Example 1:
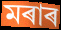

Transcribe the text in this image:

মৰাৰ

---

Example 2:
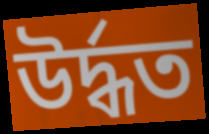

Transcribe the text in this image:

উৰ্দ্ধত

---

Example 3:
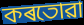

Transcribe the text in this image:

কৰতোৱা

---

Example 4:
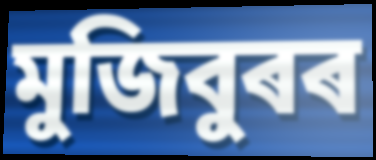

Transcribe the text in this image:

মুজিবুৰৰ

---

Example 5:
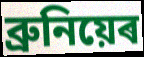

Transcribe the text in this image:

ব্ৰুনিয়েৰ